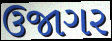
ઉજાગર